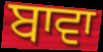
ਬਾਵਾ